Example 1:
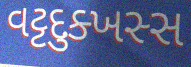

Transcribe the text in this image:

વટ્ટદુક્ખસ્સ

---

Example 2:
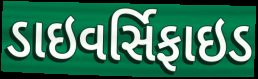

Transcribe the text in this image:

ડાઇવર્સિફાઇડ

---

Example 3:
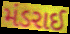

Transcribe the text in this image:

મંડરાઈ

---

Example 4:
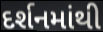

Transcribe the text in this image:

દર્શનમાંથી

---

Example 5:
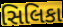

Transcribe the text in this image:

સિલિકા